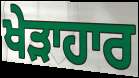
ਖੇੜਾਹਾਰ